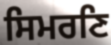
ਸਿਮਰਣਿ